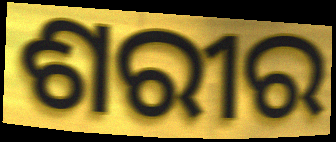
ଶରୀର